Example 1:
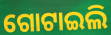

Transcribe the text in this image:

ଗୋଟାଇଲି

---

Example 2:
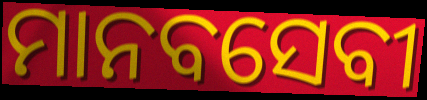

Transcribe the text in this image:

ମାନବସେବୀ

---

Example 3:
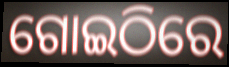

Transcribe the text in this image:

ଗୋଇଠିରେ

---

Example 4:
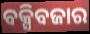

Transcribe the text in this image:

ବକ୍ସିବଜାର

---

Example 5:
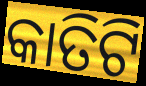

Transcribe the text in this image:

କାତିଟି